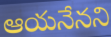
ఆయనేనని